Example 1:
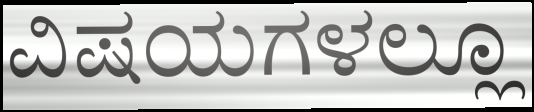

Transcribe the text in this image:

ವಿಷಯಗಳಲ್ಲೂ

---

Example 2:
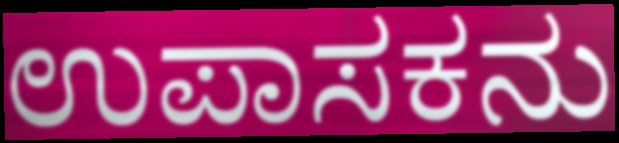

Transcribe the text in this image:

ಉಪಾಸಕನು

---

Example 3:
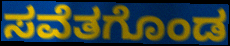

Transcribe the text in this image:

ಸವೆತಗೊಂಡ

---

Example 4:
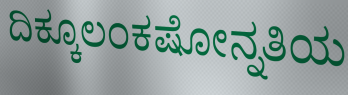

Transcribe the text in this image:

ದಿಕ್ಕೂಲಂಕಷೋನ್ನತಿಯ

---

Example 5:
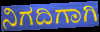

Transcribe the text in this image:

ನಿಗದಿಗಾಗಿ